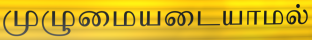
முழுமையடையாமல்